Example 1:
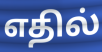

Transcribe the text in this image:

எதில்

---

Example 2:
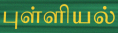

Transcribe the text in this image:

புள்ளியல்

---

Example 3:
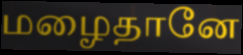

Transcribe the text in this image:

மழைதானே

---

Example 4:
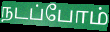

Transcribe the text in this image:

நடப்போம்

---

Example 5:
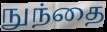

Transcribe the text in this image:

நுந்தை